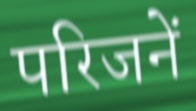
परिजनें